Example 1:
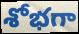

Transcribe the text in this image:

శోభగా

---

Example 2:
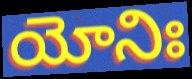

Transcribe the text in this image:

యోనిః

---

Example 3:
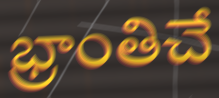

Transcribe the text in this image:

భ్రాంతిచే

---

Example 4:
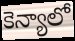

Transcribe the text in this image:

కెన్యాలో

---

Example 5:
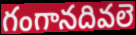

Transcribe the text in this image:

గంగానదివలె